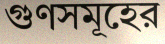
গুণসমূহের